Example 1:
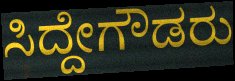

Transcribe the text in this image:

ಸಿದ್ದೇಗೌಡರು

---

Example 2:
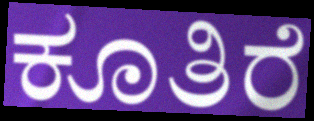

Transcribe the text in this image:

ಕೂತಿರೆ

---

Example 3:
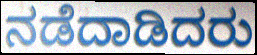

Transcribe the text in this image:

ನಡೆದಾಡಿದರು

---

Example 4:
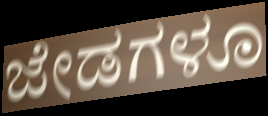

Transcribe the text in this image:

ಜೇಡಗಳೂ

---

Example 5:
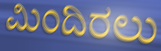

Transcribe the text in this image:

ಮಿಂದಿರಲು